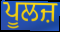
ਪੂਲਜ਼